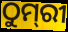
ଠୁମ୍‌ରୀ